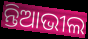
ନ୍ତିଆଭୀଲ